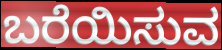
ಬರೆಯಿಸುವ